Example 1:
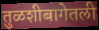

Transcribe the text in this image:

तुळशीबागेतली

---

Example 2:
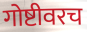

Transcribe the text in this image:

गोष्टीवरच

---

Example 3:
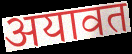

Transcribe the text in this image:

अयावत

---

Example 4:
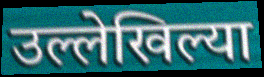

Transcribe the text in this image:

उल्लेखिल्या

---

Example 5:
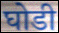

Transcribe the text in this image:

घोडी